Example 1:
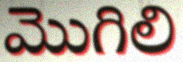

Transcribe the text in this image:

మొగిలి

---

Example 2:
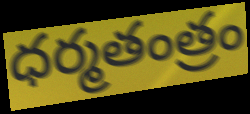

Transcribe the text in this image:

ధర్మతంత్రం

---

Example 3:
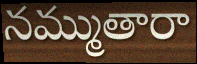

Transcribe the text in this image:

నమ్ముతారా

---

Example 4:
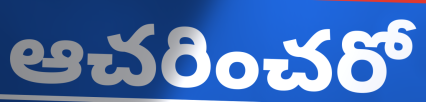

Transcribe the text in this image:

ఆచరించరో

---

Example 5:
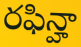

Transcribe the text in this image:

రఫిన్హా